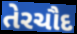
તેરચૌદ